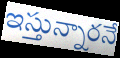
ఇస్తున్నారనే